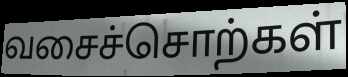
வசைச்சொற்கள்